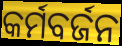
କର୍ମବର୍ଜନ